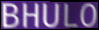
BHULO